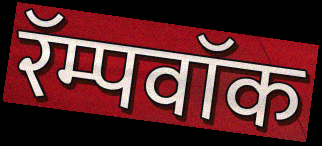
रॅम्पवॉक